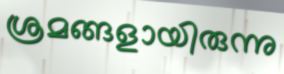
ശ്രമങ്ങളായിരുന്നു